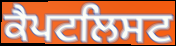
ਕੈਪਟਲਿਸਟ